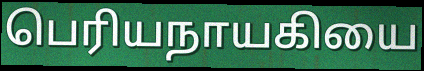
பெரியநாயகியை